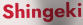
Shingeki